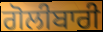
ਗੋਲੀਬਾਰੀ